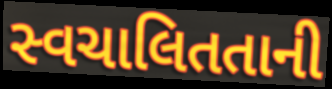
સ્વચાલિતતાની